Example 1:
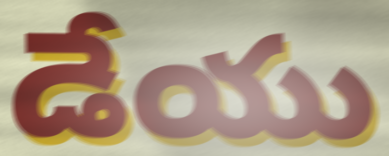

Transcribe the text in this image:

డేయు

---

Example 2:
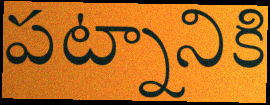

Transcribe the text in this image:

పట్నానికి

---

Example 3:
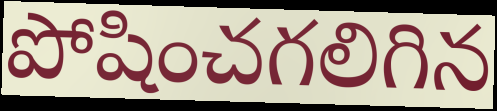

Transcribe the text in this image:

పోషించగలిగిన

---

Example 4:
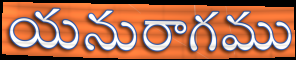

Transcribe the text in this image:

యనురాగము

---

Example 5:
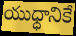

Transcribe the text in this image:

యుధ్ధానికే